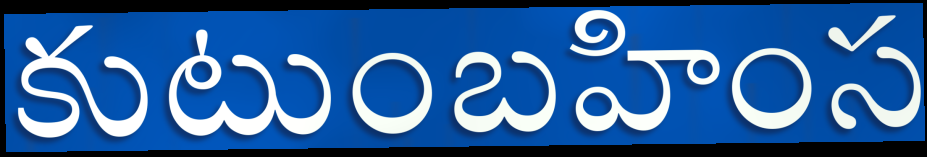
కుటుంబహింస